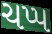
ચપ્પ